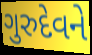
ગુરુદેવને